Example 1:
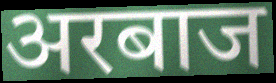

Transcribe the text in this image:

अरबाज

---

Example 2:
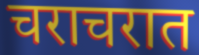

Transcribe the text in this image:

चराचरात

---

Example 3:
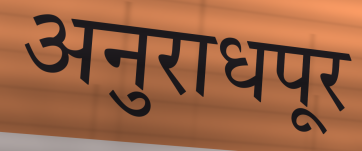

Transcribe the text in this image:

अनुराधपूर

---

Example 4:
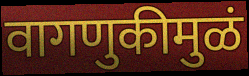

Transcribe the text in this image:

वागणुकीमुळं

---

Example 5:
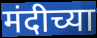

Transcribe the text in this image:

मंदीच्या